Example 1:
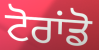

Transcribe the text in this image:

ਟੋਰਾਂਡੋ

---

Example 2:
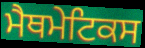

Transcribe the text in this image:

ਮੈਥਮੇਟਿਕਸ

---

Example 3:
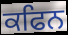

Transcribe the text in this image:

ਕਫਿਨ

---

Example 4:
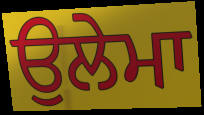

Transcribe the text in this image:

ਉਲੇਮਾ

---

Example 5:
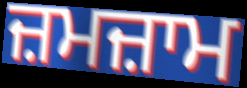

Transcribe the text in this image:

ਜ਼ਮਜ਼ਾਮ